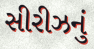
સીરીઝનું